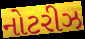
નોટરીઝ